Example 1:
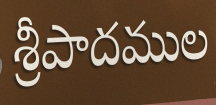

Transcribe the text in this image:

శ్రీపాదముల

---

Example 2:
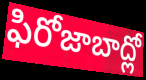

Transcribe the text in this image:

ఫిరోజాబాద్లో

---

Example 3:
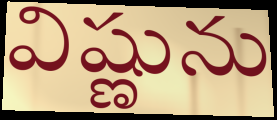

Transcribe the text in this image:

విష్ణును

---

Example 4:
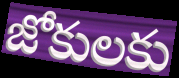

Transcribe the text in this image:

జోకులకు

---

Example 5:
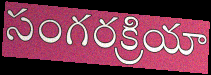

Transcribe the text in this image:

సంగరక్రియా